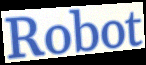
Robot